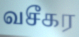
வசீகர